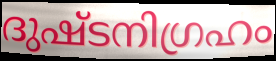
ദുഷ്ടനിഗ്രഹം